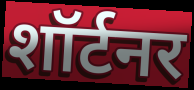
शॉर्टनर